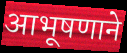
आभूषणाने